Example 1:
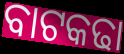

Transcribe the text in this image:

ବାଟକଢା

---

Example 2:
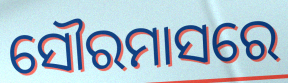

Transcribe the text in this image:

ସୌରମାସରେ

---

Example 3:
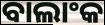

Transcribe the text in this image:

ବାଲାଂକ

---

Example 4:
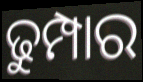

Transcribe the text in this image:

ଢୁମ୍ପାର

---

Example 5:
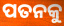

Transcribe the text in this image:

ପତନକୁ